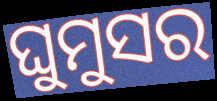
ଘୁମୁସର